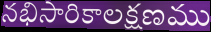
నభిసారికాలక్షణము